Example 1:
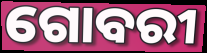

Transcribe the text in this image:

ଗୋବରୀ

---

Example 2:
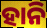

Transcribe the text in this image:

ହାନି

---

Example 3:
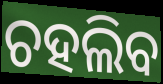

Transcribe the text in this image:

ଚହଲିବ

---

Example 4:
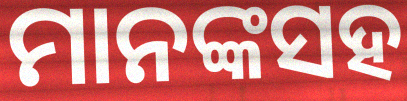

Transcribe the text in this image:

ମାନଙ୍କସହ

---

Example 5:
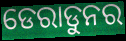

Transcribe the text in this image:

ଡେରାଡୁନର